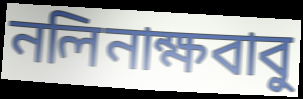
নলিনাক্ষবাবু